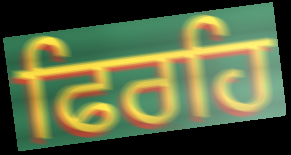
ਫਿਰਹਿ